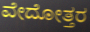
ವೇದೋತ್ತರ